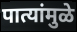
पात्यांमुळे